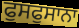
ਫੁਸਫੁਸਾਨਾ